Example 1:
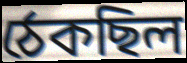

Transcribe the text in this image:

ঠেকছিল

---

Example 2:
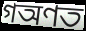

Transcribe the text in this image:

গঅণত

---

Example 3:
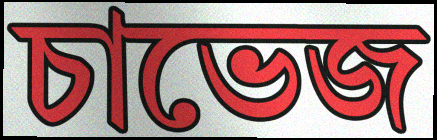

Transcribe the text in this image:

চাভেজ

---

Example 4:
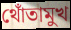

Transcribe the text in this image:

থোঁতামুখ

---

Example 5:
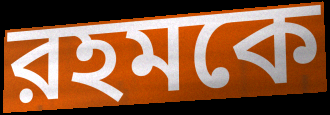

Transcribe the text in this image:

রহমকে